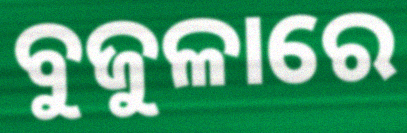
ବୁଜୁଳାରେ